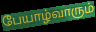
பேயாழ்வாரும்